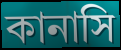
কানাসি